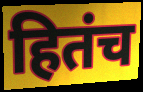
हितंच